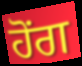
ਹੋੰਗ